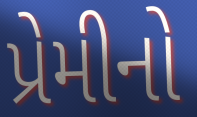
પ્રેમીનો